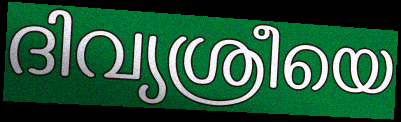
ദിവ്യശ്രീയെ